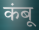
कंबू